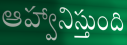
ఆహ్వానిస్తుంది